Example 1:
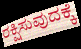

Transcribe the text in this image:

ರಕ್ಷಿಸುವುದಕ್ಕೆ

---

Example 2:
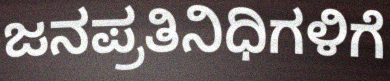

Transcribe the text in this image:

ಜನಪ್ರತಿನಿಧಿಗಳಿಗೆ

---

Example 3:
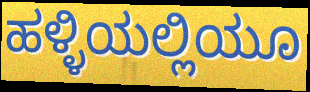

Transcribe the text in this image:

ಹಳ್ಳಿಯಲ್ಲಿಯೂ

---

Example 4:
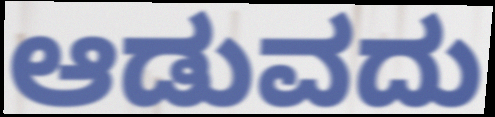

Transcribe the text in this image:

ಆಡುವದು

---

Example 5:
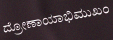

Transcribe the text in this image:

ದ್ರೋಣಾಯಾಭಿಮುಖಂ